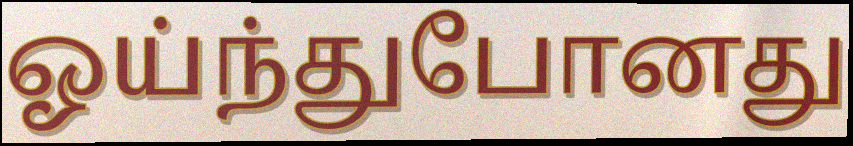
ஓய்ந்துபோனது